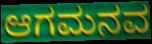
ಆಗಮನವ